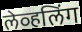
लेव्हलिंग